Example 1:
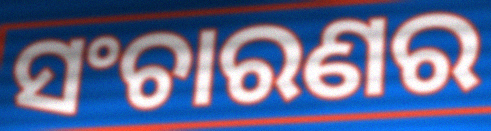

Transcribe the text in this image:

ସଂଚାରଣର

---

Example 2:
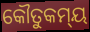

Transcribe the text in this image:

କୌତୁକମ୍‍ୟ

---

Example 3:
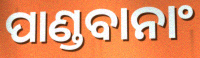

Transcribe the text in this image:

ପାଣ୍ଡବାନାଂ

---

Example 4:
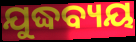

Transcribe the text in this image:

ଯୁଦ୍ଧବ୍ୟୟ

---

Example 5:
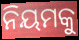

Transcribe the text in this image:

ନିୟମକୁ